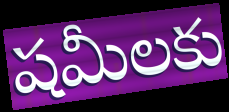
షమీలకు